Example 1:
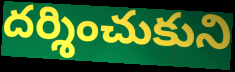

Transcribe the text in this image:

దర్శించుకుని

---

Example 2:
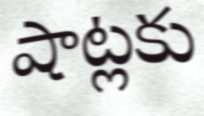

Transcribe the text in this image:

షాట్లకు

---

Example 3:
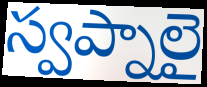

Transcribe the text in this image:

స్వప్నాలై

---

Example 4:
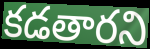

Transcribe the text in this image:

కడతారని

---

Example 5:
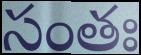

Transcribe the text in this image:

సంతః